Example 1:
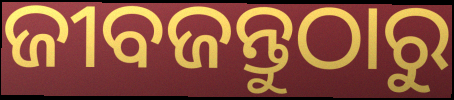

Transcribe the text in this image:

ଜୀବଜନ୍ତୁଠାରୁ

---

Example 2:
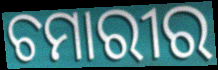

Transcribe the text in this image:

ଚମାରୀର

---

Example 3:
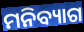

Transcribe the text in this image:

ମନିବ୍ୟାଗ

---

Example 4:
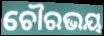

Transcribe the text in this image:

ଚୌରଭୟ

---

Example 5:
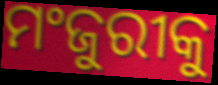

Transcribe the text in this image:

ମଂଜୁରୀକୁ